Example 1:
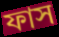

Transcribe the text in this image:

ফাস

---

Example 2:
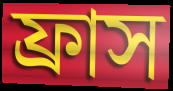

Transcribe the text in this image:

ফ্রাস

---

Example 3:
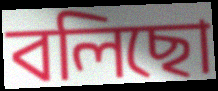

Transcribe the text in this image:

বলিছো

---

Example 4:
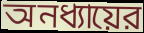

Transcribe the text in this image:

অনধ্যায়ের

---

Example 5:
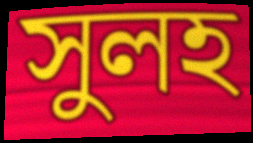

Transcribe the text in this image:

সুলহ